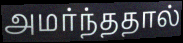
அமர்ந்ததால்